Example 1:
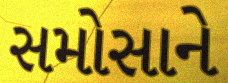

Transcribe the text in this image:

સમોસાને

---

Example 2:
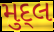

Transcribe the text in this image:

મુદ્લ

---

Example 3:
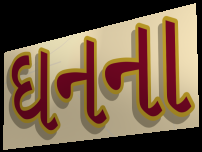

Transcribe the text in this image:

ઘનના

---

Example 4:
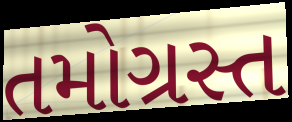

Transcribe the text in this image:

તમોગ્રસ્ત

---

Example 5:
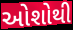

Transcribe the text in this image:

ઓશોથી